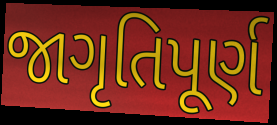
જાગૃતિપૂર્ણ